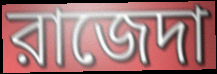
রাজেদা